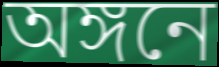
অঙ্গনে